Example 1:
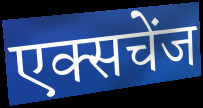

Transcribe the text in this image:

एक्सचेंज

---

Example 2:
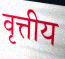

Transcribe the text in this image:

वृत्तीय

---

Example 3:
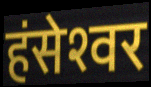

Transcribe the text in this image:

हंसेश्वर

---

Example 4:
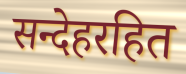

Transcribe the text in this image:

सन्देहरहित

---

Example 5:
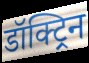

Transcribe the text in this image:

डॉक्ट्रिन